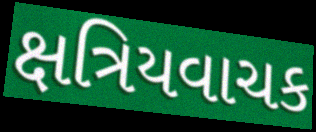
ક્ષત્રિયવાચક